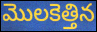
మొలకెత్తిన